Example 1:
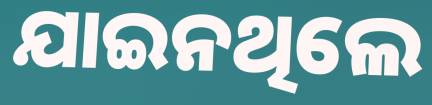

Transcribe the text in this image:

ଯାଇନଥିଲେ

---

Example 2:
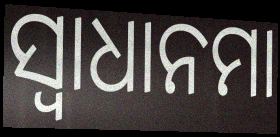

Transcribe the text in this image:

ସ୍ଵାଧାନମା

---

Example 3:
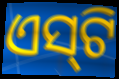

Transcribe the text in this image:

ଏସ୍‌ଟି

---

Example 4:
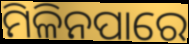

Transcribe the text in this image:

ମିଳିନପାରେ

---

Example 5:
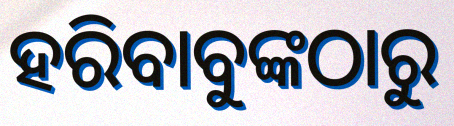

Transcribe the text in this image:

ହରିବାବୁଙ୍କଠାରୁ